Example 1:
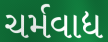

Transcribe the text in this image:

ચર્મવાદ્ય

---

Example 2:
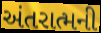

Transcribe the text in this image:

અંતરાત્મની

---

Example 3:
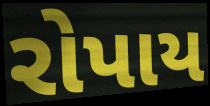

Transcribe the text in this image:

રોપાય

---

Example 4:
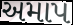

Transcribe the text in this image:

અમાપ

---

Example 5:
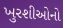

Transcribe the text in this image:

ખુરશીઓનો